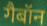
गैबॉन